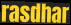
rasdhar